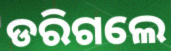
ଡରିଗଲେ